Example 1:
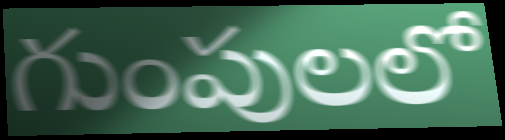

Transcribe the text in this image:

గుంపులలో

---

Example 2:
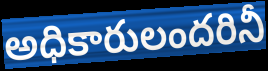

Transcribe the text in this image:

అధికారులందరినీ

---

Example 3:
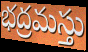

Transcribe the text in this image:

భద్రమస్తు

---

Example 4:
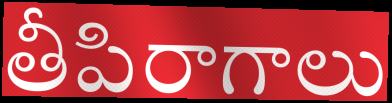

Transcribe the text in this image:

తీపిరాగాలు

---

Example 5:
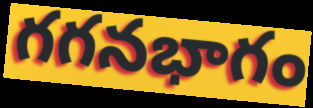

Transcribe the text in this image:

గగనభాగం